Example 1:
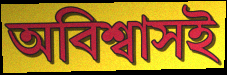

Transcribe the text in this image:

অবিশ্বাসই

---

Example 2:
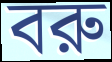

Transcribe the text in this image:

বরু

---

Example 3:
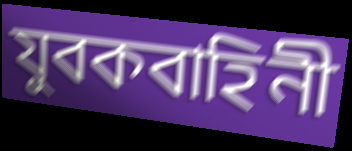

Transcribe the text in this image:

যুবকবাহিনী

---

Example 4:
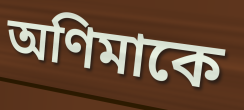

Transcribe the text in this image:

অণিমাকে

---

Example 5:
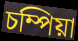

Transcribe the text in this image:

চম্পিয়া